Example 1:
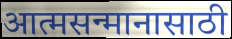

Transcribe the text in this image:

आत्मसन्मानासाठी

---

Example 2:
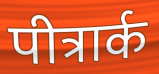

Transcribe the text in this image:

पीत्रार्क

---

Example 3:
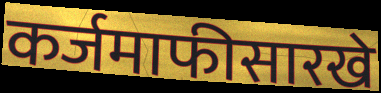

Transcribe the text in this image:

कर्जमाफीसारखे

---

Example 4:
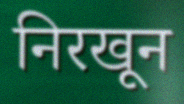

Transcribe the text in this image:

निरखून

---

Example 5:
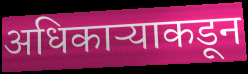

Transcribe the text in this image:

अधिकाऱ्याकडून